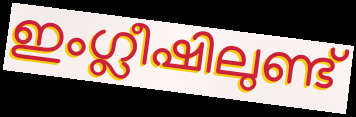
ഇംഗ്ലീഷിലുണ്ട്